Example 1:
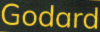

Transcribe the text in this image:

Godard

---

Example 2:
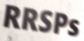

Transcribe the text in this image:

RRSPs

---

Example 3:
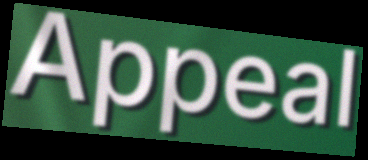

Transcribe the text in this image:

Appeal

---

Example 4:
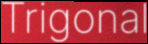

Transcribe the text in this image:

Trigonal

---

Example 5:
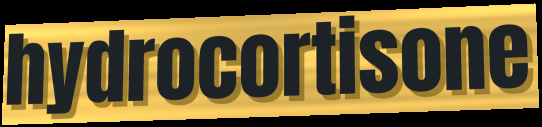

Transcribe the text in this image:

hydrocortisone